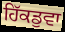
ਹਿੱਕਡੁਵਾ